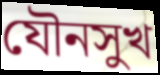
যৌনসুখ